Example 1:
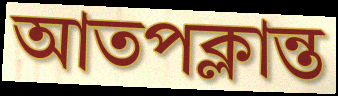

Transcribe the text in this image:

আতপক্লান্ত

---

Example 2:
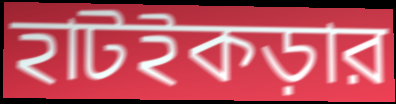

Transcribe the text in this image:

হাটইকড়ার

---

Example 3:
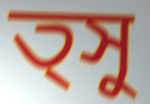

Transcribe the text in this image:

ত্সু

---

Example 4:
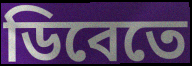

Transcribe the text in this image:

ডিবেতে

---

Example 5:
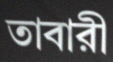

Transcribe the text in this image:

তাবারী